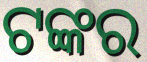
ଟଙ୍କର